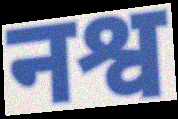
नश्व